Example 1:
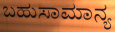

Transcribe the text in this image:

ಬಹುಸಾಮಾನ್ಯ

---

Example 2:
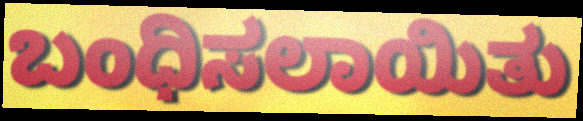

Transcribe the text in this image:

ಬಂಧಿಸಲಾಯಿತು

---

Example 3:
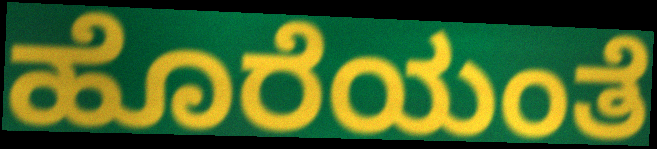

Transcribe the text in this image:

ಹೊರೆಯಂತೆ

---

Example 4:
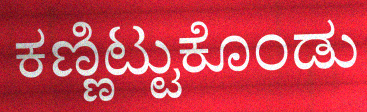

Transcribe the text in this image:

ಕಣ್ಣಿಟ್ಟುಕೊಂಡು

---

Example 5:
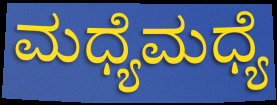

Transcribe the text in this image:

ಮಧ್ಯೆಮಧ್ಯೆ